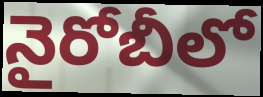
నైరోబీలో